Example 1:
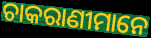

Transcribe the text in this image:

ଚାକରାଣୀମାନେ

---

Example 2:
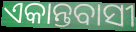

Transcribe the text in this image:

ଏକାନ୍ତବାସୀ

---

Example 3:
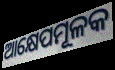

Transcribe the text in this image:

ଆକ୍ଷେପମୂଳକ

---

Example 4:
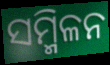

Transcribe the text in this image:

ସମ୍ମିଳନ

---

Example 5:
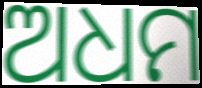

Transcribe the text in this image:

ଅଧମ